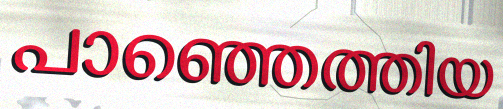
പാഞ്ഞെത്തിയ